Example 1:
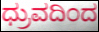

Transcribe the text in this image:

ಧ್ರುವದಿಂದ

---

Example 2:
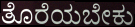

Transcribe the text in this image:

ತೊರೆಯಬೇಕು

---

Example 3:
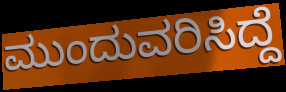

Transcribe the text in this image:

ಮುಂದುವರಿಸಿದ್ದೆ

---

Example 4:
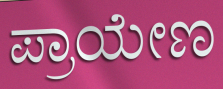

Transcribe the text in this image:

ಪ್ರಾಯೇಣ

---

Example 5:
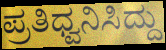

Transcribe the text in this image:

ಪ್ರತಿಧ್ವನಿಸಿದ್ದು